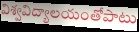
విశ్వవిద్యాలయంతోపాటు